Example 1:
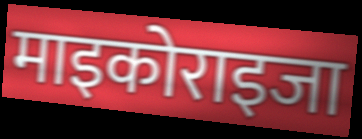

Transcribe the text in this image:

माइकोराइजा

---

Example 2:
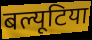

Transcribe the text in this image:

बल्यूटिया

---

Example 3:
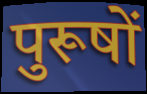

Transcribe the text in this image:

पुरूषों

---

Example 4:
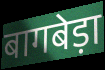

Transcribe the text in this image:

बागबेड़ा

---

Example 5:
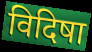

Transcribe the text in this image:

विदिषा